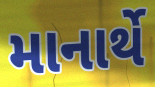
માનાર્થે